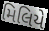
મિલિયે